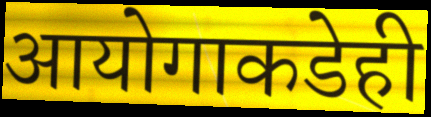
आयोगाकडेही